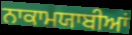
ਨਾਕਾਮਯਾਬੀਆਂ